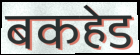
बकहेड